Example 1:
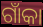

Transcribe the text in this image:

ଗାଁକା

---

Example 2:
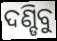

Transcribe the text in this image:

ଦଣ୍ଡିବୁ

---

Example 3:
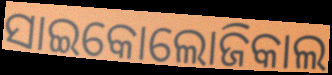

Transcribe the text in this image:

ସାଇକୋଲୋଜିକାଲ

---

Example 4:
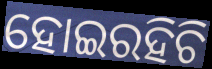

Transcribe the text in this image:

ହୋଇରହିଚି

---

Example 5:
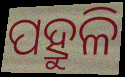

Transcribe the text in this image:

ପହ୍ରୁଳି